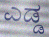
ಎಡ್ಡ